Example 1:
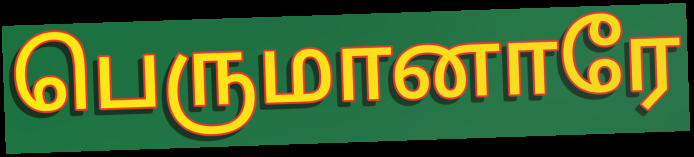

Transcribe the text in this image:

பெருமானாரே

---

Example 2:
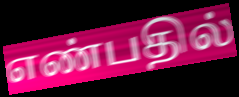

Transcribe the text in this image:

எண்பதில்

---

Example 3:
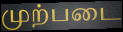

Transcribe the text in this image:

முற்படை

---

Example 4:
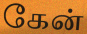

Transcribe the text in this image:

கேன்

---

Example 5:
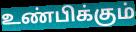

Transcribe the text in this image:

உண்பிக்கும்